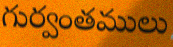
గుర్వంతములు